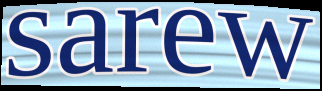
sarew